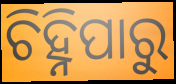
ଚିହ୍ନିପାରୁ